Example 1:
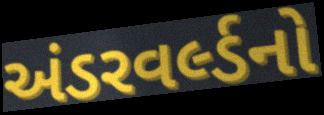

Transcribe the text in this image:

અંડરવર્લ્ડનો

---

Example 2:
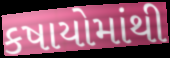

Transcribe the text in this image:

કષાયોમાંથી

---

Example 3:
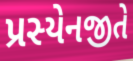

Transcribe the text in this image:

પ્રસ્યેનજીતે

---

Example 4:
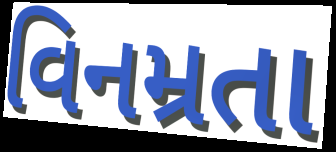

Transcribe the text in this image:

વિનમ્રતા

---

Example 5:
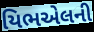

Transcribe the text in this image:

યિભએલની